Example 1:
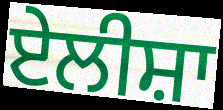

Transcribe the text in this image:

ਏਲੀਸ਼ਾ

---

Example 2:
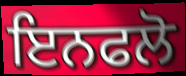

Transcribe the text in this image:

ਇਨਫਲੋ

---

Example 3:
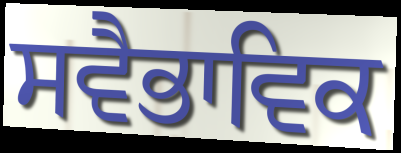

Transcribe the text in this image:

ਸਵੈਭਾਵਿਕ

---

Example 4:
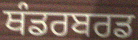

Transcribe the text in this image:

ਥੰਡਰਬਰਡ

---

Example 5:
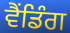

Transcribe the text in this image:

ਵੈਂਡਿੰਗ